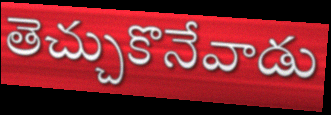
తెచ్చుకొనేవాడు